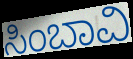
ಸಿಂಬಾವಿ